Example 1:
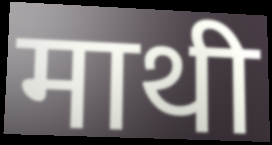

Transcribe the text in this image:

माथी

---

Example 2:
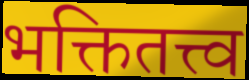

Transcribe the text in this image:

भक्तितत्त्व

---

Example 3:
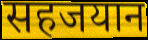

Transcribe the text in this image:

सहजयान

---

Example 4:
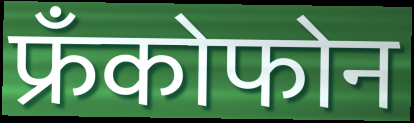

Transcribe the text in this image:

फ्रँकोफोन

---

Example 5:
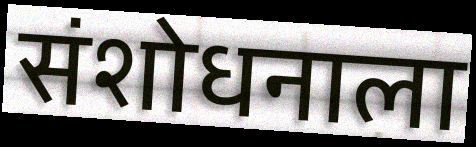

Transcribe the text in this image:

संशोधनाला